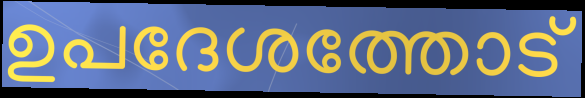
ഉപദേശത്തോട്